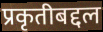
प्रकृतीबद्दल